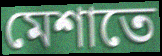
মেশাতে